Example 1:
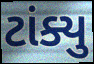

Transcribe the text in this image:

ટાંક્યુ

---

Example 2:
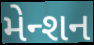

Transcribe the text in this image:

મેન્શન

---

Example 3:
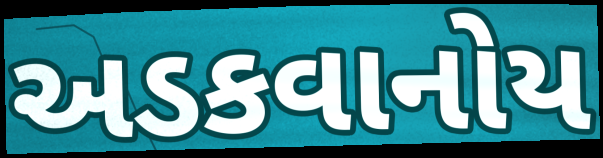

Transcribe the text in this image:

અડકવાનોય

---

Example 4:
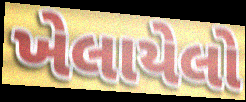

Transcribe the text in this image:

ખેલાયેલો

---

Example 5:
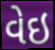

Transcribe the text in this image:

વેઇ